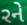
રને